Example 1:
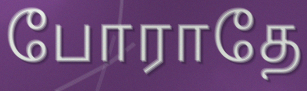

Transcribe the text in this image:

போராதே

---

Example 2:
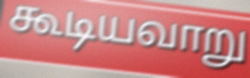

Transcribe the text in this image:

கூடியவாறு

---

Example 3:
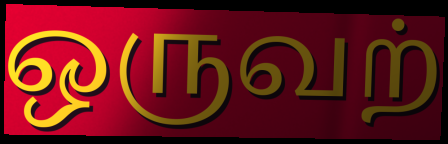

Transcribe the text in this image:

ஒருவற்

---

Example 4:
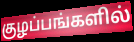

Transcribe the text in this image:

குழப்பங்களில்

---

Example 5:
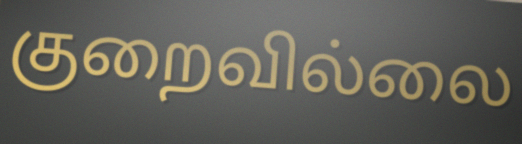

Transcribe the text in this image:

குறைவில்லை